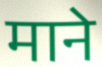
माने